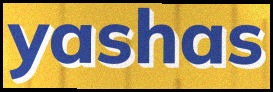
yashas